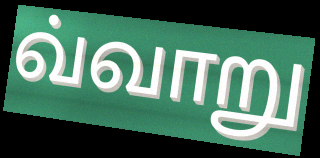
வ்வாறு